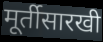
मूर्तीसारखी